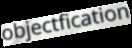
objectfication